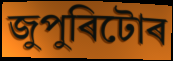
জুপুৰিটোৰ